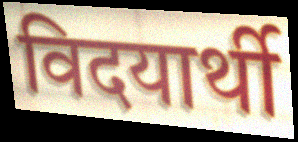
विदयार्थी